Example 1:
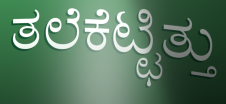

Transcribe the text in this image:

ತಲೆಕೆಟ್ಟಿತ್ತು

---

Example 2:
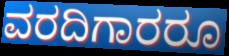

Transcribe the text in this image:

ವರದಿಗಾರರೂ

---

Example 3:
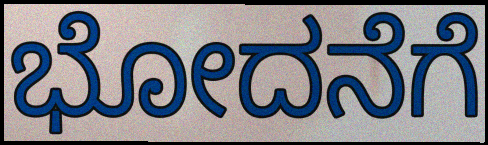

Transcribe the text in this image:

ಭೋದನೆಗೆ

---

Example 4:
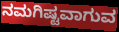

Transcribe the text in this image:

ನಮಗಿಷ್ಟವಾಗುವ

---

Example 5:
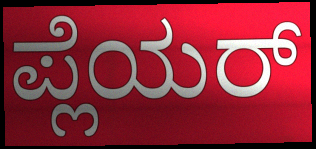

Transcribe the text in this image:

ಪ್ಲೆಯರ್